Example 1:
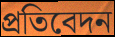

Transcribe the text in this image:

প্রতিবেদন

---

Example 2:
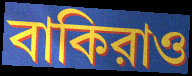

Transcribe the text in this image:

বাকিরাও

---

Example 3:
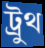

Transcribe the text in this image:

ট্রুথ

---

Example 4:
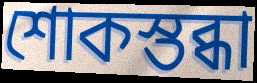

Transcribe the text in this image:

শোকস্তব্ধা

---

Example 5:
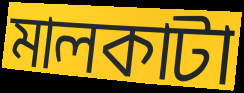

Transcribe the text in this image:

মালকাটা